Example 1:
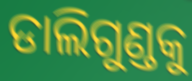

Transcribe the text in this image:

ଡାଲିଗୁଣ୍ଡକୁ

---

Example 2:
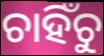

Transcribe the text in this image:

ଚାହିଁଚୁ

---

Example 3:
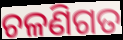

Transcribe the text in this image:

ଚଳଣିଗତ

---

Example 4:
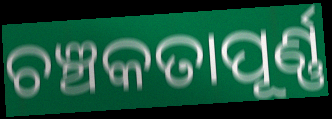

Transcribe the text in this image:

ଚଞ୍ଚକତାପୂର୍ଣ୍ଣ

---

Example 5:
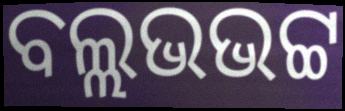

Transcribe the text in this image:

ବଲ୍ଲଭଭଟ୍ଟ